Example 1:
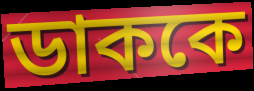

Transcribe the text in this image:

ডাককে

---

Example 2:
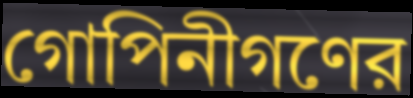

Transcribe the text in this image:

গোপিনীগণের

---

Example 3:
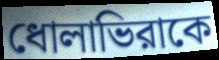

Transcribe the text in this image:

ধোলাভিরাকে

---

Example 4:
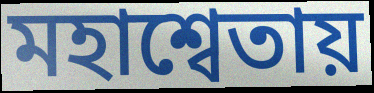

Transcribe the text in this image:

মহাশ্বেতায়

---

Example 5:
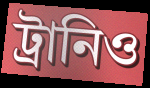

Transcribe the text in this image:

ট্রানিও